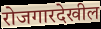
रोजगारदेखील